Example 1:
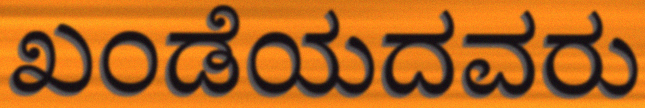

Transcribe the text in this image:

ಖಂಡೆಯದವರು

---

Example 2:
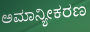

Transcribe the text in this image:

ಅಮಾನ್ಯೀಕರಣ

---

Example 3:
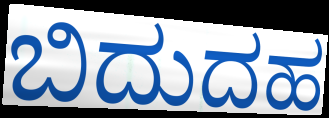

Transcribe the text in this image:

ಬಿದುದಹ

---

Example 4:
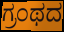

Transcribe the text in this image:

ಗ್ರಂಥದ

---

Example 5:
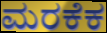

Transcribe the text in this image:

ಮರಕೆಕ